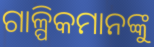
ଗାଳ୍ପିକମାନଙ୍କୁ